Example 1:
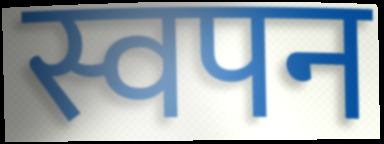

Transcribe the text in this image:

स्वपन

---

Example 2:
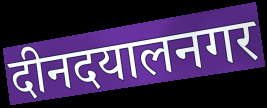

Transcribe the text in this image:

दीनदयालनगर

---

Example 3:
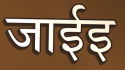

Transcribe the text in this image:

जाईइ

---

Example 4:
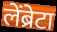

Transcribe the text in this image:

लेंब्रेटा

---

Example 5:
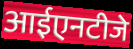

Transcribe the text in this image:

आईएनटीजे